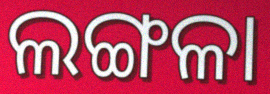
ଲଙ୍ଗଳା